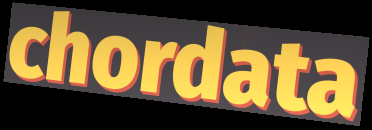
chordata